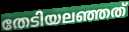
തേടിയലഞ്ഞത്